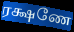
ரக்ஷணே